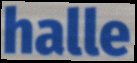
halle